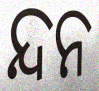
ନ୍ଦନ